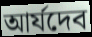
আর্যদেব